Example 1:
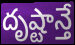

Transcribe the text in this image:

దృష్టాన్తే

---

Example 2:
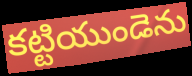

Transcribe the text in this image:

కట్టియుండెను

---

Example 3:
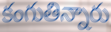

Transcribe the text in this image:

కంగుతిన్నారు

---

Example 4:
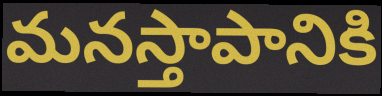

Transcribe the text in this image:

మనస్తాపానికి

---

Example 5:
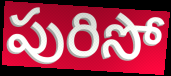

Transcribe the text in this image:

పురిసో